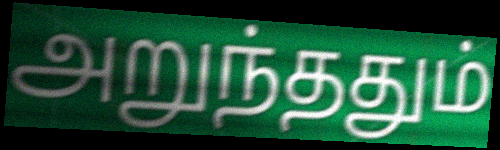
அறுந்ததும்